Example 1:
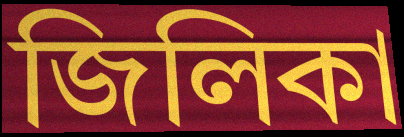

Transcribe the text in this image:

জিলিকা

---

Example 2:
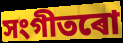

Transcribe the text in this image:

সংগীতৰো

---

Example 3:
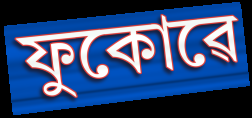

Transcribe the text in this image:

ফুকোৱে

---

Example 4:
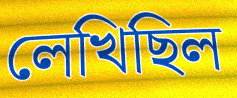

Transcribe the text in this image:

লেখিছিল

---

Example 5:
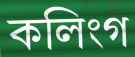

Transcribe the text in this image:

কলিংগ